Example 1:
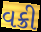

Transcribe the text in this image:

વક્રી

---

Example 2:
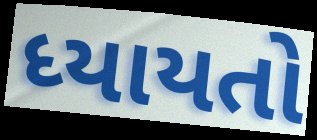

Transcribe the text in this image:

ધ્યાયતો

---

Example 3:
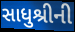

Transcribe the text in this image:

સાધુશ્રીની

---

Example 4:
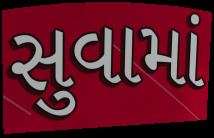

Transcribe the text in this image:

સુવામાં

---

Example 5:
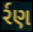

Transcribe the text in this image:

ર્રણ